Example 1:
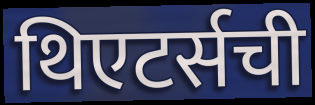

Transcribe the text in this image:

थिएटर्सची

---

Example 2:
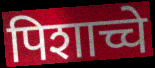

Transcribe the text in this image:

पिशाच्चे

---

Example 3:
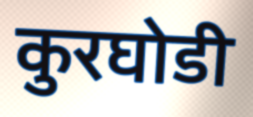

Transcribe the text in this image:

कुरघोडी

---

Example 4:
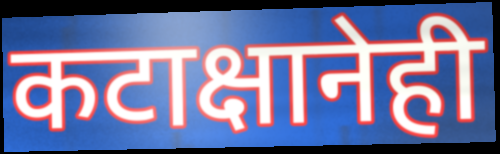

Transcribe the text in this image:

कटाक्षानेही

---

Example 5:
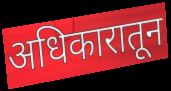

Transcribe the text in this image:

अधिकारातून